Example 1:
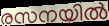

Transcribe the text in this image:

രസനയിൽ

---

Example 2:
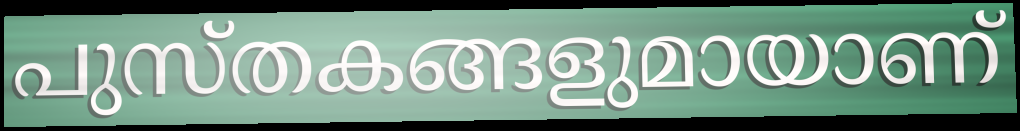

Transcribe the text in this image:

പുസ്തകങ്ങളുമായാണ്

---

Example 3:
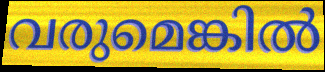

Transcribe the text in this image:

വരുമെങ്കിൽ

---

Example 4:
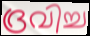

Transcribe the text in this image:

ദ്രവിച്ച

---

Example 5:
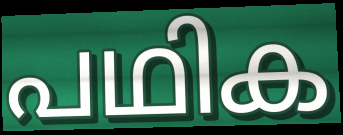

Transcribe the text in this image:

പഥിക